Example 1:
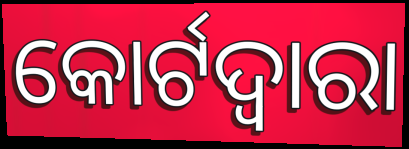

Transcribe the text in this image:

କୋର୍ଟଦ୍ୱାରା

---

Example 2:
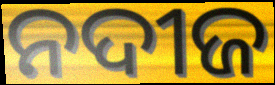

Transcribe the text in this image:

ନଦୀଜ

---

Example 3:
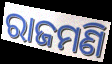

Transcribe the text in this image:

ରାଜମଣି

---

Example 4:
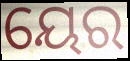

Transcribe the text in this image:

ୟେର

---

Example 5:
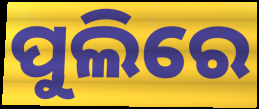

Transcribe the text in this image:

ପୁଲିରେ